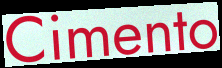
Cimento